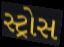
સ્ટ્રોસ